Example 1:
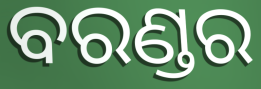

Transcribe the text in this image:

ବରଣ୍ଡର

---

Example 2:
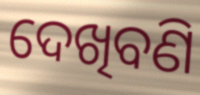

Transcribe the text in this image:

ଦେଖିବଣି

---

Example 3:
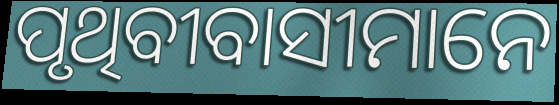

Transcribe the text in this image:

ପୃଥିବୀବାସୀମାନେ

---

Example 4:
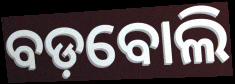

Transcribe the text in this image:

ବଡ଼ବୋଲି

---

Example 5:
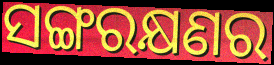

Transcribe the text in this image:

ସଙ୍ଗରକ୍ଷଣର